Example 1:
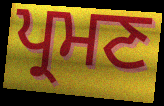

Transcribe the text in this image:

ਪ੍ਰਮਣ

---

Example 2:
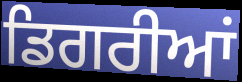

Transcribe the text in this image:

ਡਿਗਰੀਆਂ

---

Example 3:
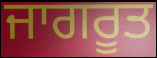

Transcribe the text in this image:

ਜਾਗਰੂਤ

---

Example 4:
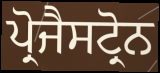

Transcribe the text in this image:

ਪ੍ਰੋਜੈਸਟ੍ਰੋਨ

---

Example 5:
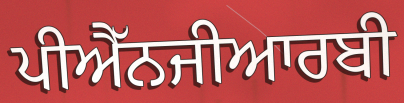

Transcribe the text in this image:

ਪੀਐੱਨਜੀਆਰਬੀ